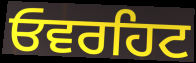
ਓਵਰਹਿਟ